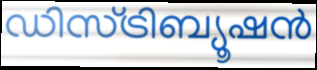
ഡിസ്ട്രിബ്യൂഷൻ